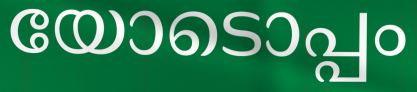
യോടൊപ്പം